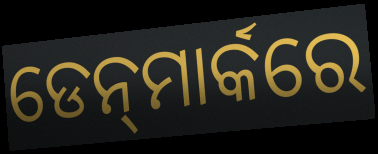
ଡେନ୍‍ମାର୍କରେ